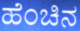
ಹೆಂಚಿನ